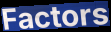
Factors